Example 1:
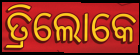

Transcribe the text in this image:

ତ୍ରିଲୋକେ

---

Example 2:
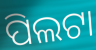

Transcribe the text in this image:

ପିଲଟା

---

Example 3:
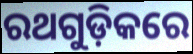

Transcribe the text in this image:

ରଥଗୁଡ଼ିକରେ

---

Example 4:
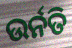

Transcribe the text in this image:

ଉର୍ନତି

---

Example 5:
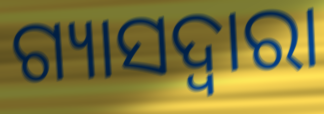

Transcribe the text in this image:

ଗ୍ୟାସଦ୍ଵାରା